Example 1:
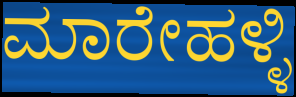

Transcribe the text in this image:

ಮಾರೇಹಳ್ಳಿ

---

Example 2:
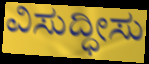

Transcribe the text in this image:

ವಿಸುದ್ಧೀಸು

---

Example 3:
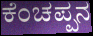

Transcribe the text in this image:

ಕೆಂಚಪ್ಪನ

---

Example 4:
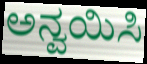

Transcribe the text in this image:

ಅನ್ವಯಿಸಿ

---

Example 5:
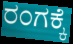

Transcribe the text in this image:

ರಂಗಕ್ಕೆ